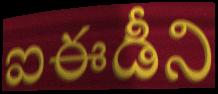
ఐఈడీని